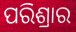
ପରିଶ୍ରାର